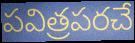
పవిత్రపరచే